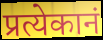
प्रत्येकानं